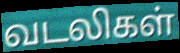
வடலிகள்